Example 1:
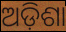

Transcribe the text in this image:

ଅଡ଼ିଶା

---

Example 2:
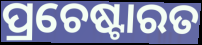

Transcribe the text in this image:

ପ୍ରଚେଷ୍ଟାରତ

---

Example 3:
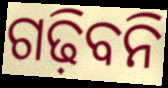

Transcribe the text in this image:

ଗଢ଼ିବନି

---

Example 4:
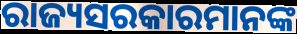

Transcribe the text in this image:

ରାଜ୍ୟସରକାରମାନଙ୍କ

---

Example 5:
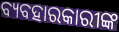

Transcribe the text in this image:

ବ୍ୟବହାରକାରୀଙ୍କ